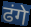
ढंगे